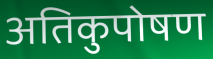
अतिकुपोषण